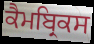
ਕੈਮਬ੍ਰਿਕਸ